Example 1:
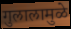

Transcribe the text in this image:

गुलालामुळे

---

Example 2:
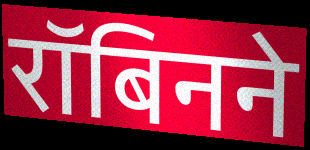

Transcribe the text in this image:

रॉबिनने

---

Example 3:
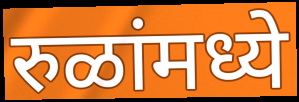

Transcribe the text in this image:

रुळांमध्ये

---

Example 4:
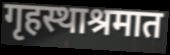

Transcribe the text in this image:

गृहस्थाश्रमात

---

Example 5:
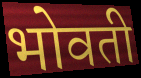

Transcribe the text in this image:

भोवती